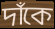
দাঁকে